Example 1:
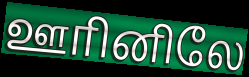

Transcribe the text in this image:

ஊரினிலே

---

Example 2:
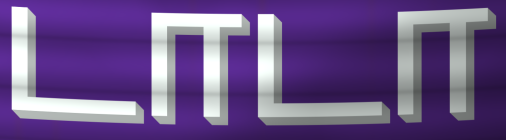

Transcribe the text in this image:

டாடா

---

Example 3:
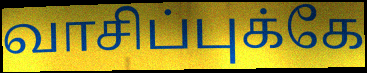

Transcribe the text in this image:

வாசிப்புக்கே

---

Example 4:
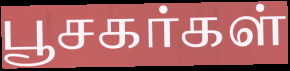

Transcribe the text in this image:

பூசகர்கள்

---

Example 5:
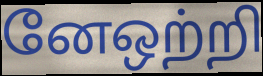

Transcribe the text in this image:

னேஒற்றி